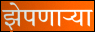
झेपणार्‍या